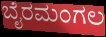
ಬೈರಮಂಗಲ